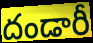
దండారీ